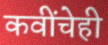
कवींचेही